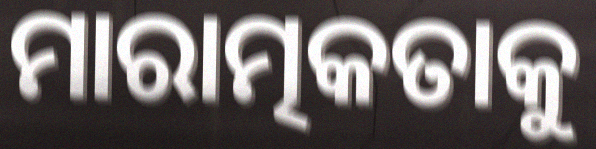
ମାରାତ୍ମକତାକୁ